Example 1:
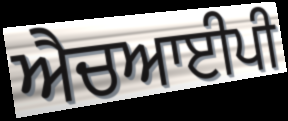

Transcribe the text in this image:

ਐਚਆਈਪੀ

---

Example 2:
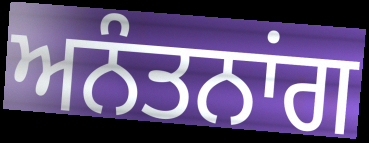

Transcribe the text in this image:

ਅਨੰਤਨਾਂਗ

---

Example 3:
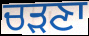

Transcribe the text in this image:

ਚੜਣਾ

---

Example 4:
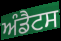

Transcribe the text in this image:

ਅੰਡੈਟਸ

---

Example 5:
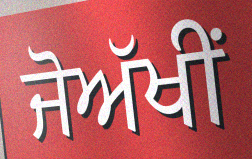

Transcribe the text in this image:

ਜੋਅੱਖੀਂ